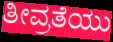
ತೀವ್ರತೆಯು